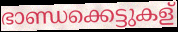
ഭാണ്ഡക്കെട്ടുകള്